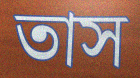
তাস